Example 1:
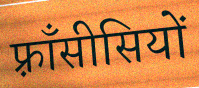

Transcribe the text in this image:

फ़्राँसीसियों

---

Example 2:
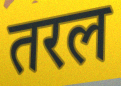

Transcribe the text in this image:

तरल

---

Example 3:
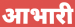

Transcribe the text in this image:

आभारी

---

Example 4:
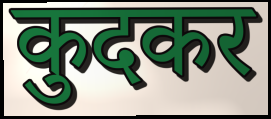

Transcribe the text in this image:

कुदकर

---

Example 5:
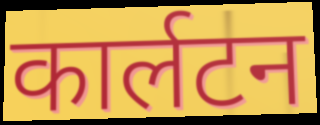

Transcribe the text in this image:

कार्लटन